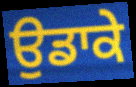
ਉਡਾਕੇ